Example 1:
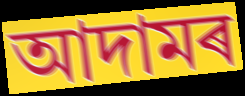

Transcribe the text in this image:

আদামৰ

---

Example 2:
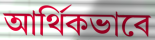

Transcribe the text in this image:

আৰ্থিকভাবে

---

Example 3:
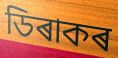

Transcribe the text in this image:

ডিৰাকৰ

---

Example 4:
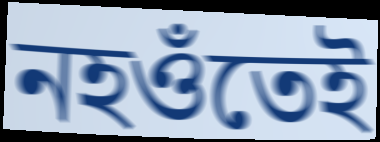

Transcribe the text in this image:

নহওঁতেই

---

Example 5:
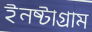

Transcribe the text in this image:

ইনষ্টাগ্ৰাম